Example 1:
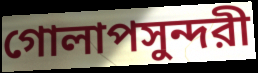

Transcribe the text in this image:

গোলাপসুন্দরী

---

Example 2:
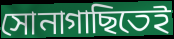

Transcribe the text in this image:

সোনাগাছিতেই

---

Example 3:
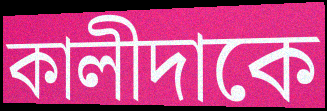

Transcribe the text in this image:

কালীদাকে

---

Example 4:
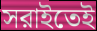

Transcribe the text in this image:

সরাইতেই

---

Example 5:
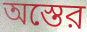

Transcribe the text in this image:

অস্তের